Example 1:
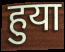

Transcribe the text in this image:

हुया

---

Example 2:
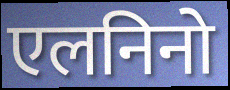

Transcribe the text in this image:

एलनिनो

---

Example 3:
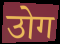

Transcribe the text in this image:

उोग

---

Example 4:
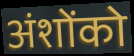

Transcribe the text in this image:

अंशोंको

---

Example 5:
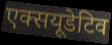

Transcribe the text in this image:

एक्सयूडेटिव